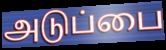
அடுப்பை